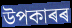
উপকাৰৰ